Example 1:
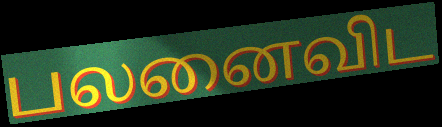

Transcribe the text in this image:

பலனைவிட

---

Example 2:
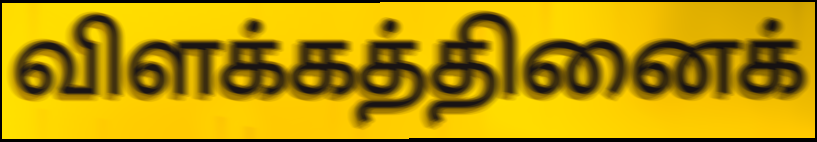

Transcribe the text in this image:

விளக்கத்தினைக்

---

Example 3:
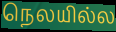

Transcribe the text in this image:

நெலயில்ல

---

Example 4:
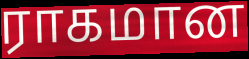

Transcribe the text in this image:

ராகமான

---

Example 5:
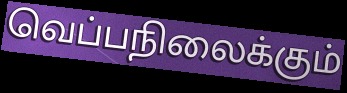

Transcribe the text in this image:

வெப்பநிலைக்கும்